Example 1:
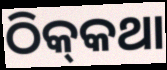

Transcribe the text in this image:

ଠିକ୍‌କଥା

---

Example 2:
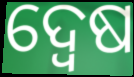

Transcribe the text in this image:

ଦ୍ବେଷ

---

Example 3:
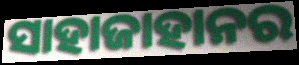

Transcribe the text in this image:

ସାହାଜାହାନର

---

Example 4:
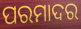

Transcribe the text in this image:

ପରମାଦର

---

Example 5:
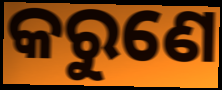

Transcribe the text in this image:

କରୁଣେ